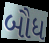
બૌધ